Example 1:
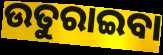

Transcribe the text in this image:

ଉତୁରାଇବା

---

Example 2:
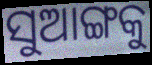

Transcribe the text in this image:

ସୁଆଙ୍ଗକୁ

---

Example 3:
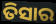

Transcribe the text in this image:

ତିସାର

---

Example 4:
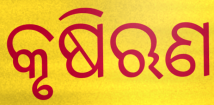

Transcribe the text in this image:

କୃଷିଋଣ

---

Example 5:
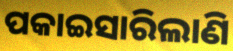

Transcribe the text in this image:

ପକାଇସାରିଲାଣି